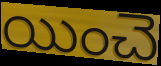
యించె